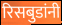
रिसबुडांनी